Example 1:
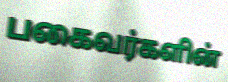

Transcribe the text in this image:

பகைவர்களின்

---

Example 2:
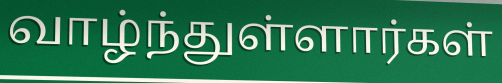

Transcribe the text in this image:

வாழ்ந்துள்ளார்கள்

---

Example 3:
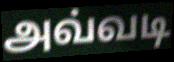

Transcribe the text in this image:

அவ்வடி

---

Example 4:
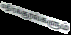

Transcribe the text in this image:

எதிர்க்குரல்களும்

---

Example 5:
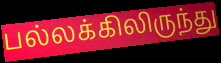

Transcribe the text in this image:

பல்லக்கிலிருந்து